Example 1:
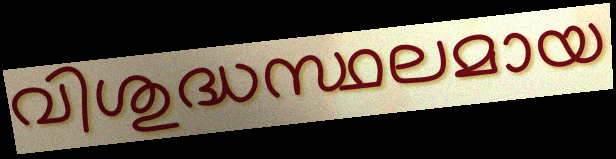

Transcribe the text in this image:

വിശുദ്ധസ്ഥലമായ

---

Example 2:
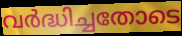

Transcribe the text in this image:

വർദ്ധിച്ചതോടെ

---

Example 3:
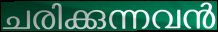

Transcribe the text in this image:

ചരിക്കുന്നവൻ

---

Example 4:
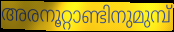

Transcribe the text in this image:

അരനൂറ്റാണ്ടിനുമുമ്പ്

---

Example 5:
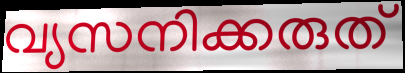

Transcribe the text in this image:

വ്യസനിക്കരുത്